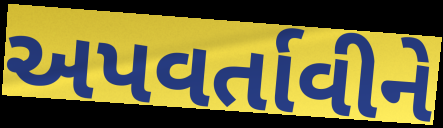
અપવર્તાવીને